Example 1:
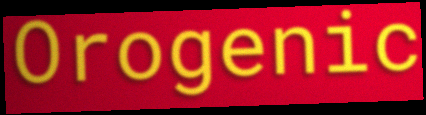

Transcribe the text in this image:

Orogenic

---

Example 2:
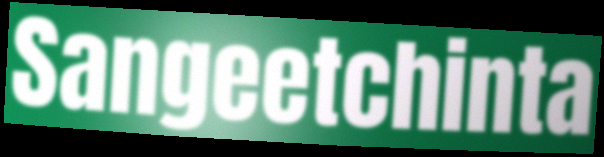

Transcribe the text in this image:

Sangeetchinta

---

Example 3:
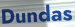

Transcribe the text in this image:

Dundas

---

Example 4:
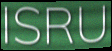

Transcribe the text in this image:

ISRU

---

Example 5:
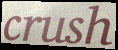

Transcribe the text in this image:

crush